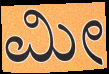
ಮೀ